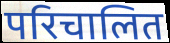
परिचालित